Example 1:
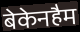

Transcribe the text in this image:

बेकेनहैम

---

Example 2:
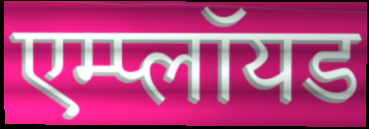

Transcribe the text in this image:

एम्प्लॉयड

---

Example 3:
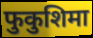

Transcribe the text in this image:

फुकुशिमा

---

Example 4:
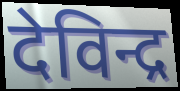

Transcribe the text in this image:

देविन्द्र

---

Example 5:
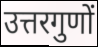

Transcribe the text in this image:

उत्तरगुणों